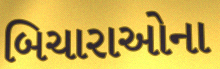
બિચારાઓના